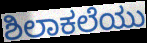
ಶಿಲಾಕಲೆಯು